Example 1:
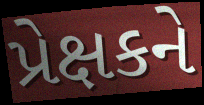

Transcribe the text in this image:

પ્રેક્ષકને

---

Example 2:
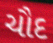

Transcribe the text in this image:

ચૌદ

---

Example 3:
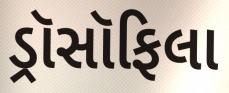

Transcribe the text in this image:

ડ્રૉસૉફિલા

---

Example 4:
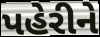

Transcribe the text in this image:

પહેરીને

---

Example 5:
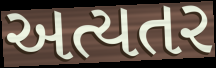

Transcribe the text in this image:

અત્યતર